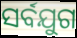
ସର୍ବଯୁଗ